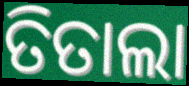
ତିତାଲା